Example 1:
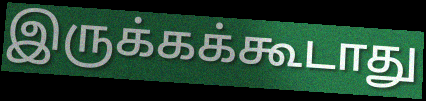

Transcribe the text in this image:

இருக்கக்கூடாது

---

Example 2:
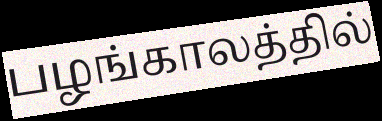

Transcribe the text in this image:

பழங்காலத்தில்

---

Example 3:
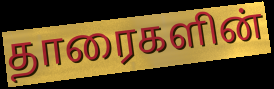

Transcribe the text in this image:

தாரைகளின்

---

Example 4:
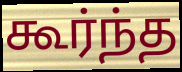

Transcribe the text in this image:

கூர்ந்த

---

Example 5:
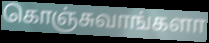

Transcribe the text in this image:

கொஞ்சுவாங்களா